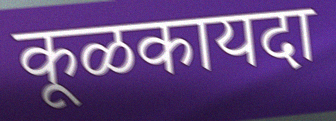
कूळकायदा